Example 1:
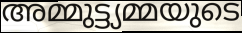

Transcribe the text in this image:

അമ്മുട്ട്യമ്മയുടെ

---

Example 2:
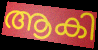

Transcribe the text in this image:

ആകി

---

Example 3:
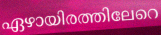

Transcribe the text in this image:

ഏഴായിരത്തിലേറെ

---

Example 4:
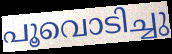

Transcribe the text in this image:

പൂവൊടിച്ചു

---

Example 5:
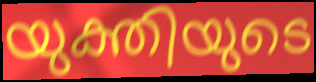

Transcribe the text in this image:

യുക്തിയുടെ